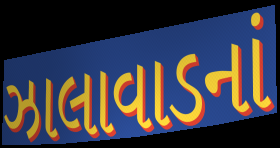
ઝાલાવાડનાં